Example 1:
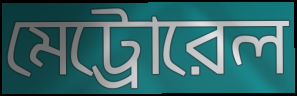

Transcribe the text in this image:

মেট্রোরেল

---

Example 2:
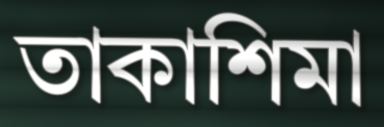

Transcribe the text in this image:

তাকাশিমা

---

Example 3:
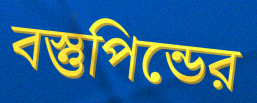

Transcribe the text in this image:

বস্তুপিন্ডের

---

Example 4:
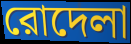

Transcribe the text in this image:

রোদেলা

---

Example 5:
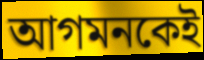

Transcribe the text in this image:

আগমনকেই